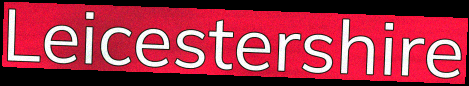
Leicestershire